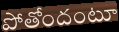
పోతోందంటూ